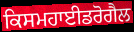
ਕਿਸਮਹਾਈਡਰੋਗੈਲ